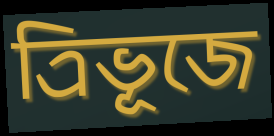
ত্ৰিভূজে